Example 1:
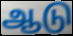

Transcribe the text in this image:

ஆடு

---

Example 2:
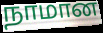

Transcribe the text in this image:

நாமான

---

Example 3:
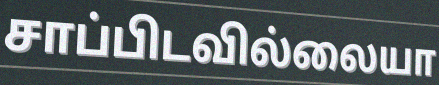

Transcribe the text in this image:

சாப்பிடவில்லையா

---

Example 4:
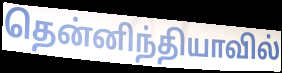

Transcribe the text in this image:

தென்னிந்தியாவில்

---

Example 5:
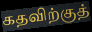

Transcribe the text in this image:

கதவிற்குத்